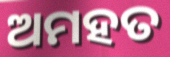
ଅମହତ